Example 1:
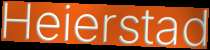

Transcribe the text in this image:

Heierstad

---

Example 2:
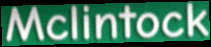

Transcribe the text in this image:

Mclintock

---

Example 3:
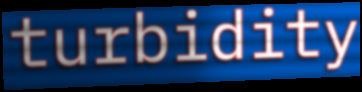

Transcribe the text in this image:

turbidity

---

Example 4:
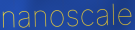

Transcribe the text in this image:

nanoscale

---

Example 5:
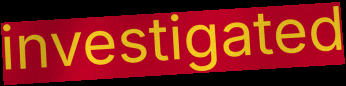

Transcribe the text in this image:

investigated